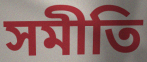
সমীতি